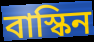
বাস্কিন